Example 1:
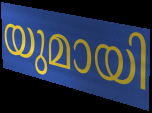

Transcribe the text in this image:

യുമായി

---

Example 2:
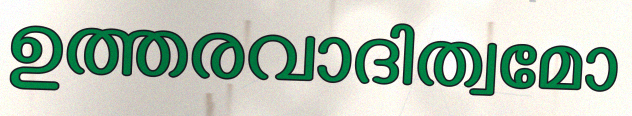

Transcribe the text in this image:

ഉത്തരവാദിത്വമോ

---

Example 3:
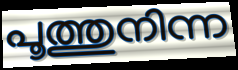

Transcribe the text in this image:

പൂത്തുനിന്ന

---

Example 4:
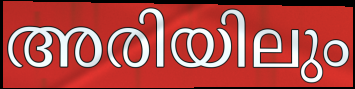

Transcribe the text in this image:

അരിയിലും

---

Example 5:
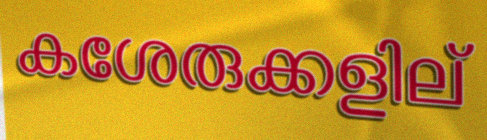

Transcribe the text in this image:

കശേരുക്കളില്